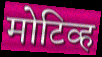
मोटिव्ह